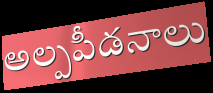
అల్పపీడనాలు